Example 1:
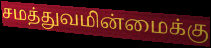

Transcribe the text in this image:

சமத்துவமின்மைக்கு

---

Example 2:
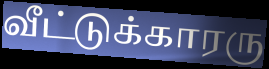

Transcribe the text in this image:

வீட்டுக்காரரு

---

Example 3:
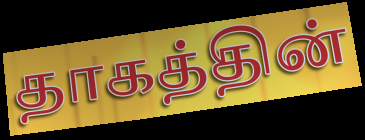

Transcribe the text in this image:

தாகத்தின்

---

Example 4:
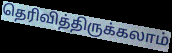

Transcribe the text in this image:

தெரிவித்திருக்கலாம்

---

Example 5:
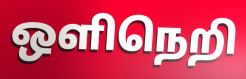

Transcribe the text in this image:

ஒளிநெறி